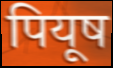
पियूष